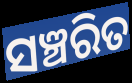
ସଞ୍ଚରିତ